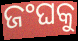
ଜଂଘକୁ